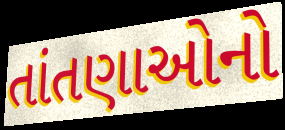
તાંતણાઓનો